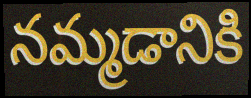
నమ్మడానికి